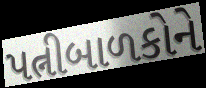
પત્નીબાળકોને